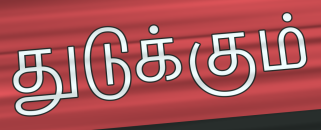
துடுக்கும்